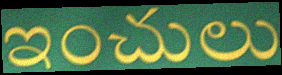
ఇంచులు